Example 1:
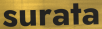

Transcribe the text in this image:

surata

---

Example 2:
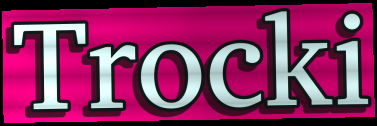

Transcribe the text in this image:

Trocki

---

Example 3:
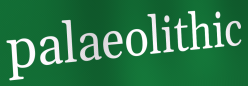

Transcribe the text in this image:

palaeolithic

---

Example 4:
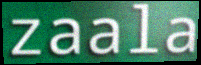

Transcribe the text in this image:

zaala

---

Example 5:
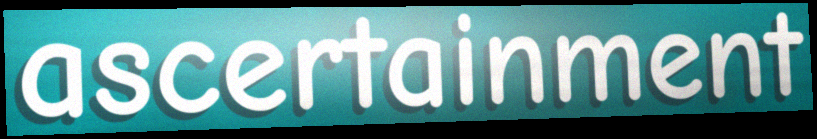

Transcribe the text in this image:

ascertainment